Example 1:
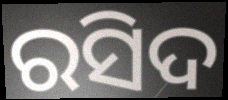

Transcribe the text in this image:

ରସିଦ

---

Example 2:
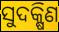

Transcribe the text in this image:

ସୁଦକ୍ଷିଣ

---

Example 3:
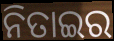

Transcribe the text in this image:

ନିତାଇର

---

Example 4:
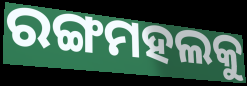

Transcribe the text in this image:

ରଙ୍ଗମହଲକୁ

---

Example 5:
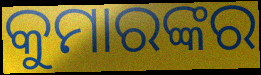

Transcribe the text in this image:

କୁମାରଙ୍କର